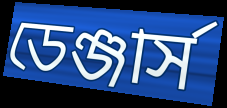
ডেঞ্জার্স